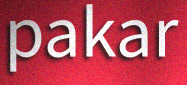
pakar